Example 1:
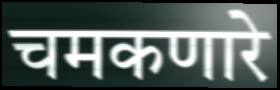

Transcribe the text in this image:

चमकणारे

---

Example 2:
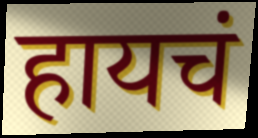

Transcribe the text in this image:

हायचं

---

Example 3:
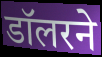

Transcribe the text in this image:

डॉलरने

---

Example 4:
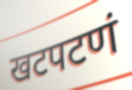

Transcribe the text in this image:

खटपटणं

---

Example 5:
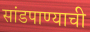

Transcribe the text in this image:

सांडपाण्याची